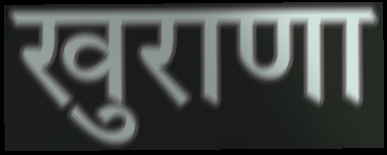
खुराणा